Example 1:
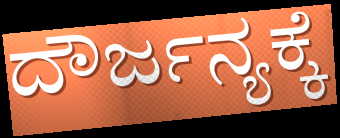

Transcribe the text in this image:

ದೌರ್ಜನ್ಯಕ್ಕೆ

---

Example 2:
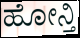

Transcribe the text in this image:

ಹೋನ್ತಿ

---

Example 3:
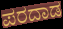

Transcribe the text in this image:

ಪರದಾಡ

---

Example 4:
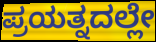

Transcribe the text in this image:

ಪ್ರಯತ್ನದಲ್ಲೇ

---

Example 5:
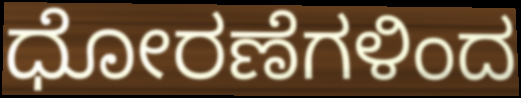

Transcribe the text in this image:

ಧೋರಣೆಗಳಿಂದ